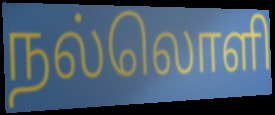
நல்லொளி